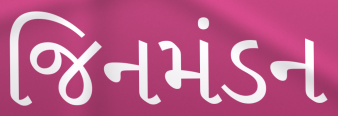
જિનમંડન